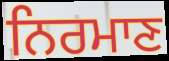
ਨਿਰਮਾਣ